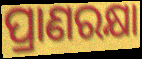
ପ୍ରାଣରକ୍ଷା